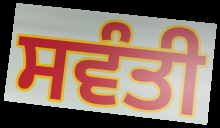
ਸਵੰਤੀ